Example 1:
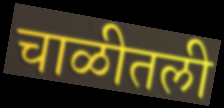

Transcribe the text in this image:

चाळीतली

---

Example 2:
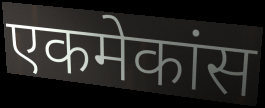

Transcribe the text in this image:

एकमेकांस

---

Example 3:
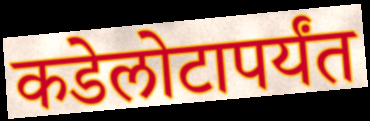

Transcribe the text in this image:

कडेलोटापर्यंत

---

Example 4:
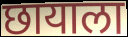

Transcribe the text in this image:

छायाला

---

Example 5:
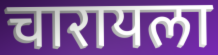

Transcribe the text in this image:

चारायला